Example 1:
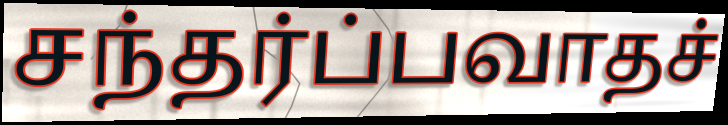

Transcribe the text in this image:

சந்தர்ப்பவாதச்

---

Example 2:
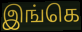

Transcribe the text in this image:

இங்கெ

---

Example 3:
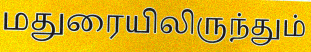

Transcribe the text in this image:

மதுரையிலிருந்தும்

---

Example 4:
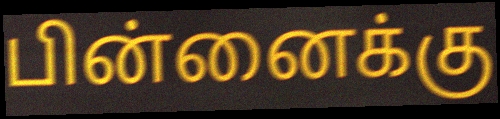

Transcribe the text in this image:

பின்னைக்கு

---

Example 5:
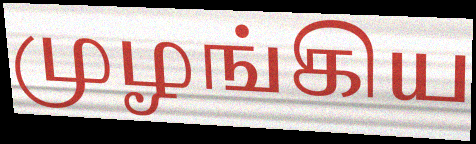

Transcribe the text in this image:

முழங்கிய